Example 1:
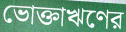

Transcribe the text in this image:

ভোক্তাঋণের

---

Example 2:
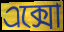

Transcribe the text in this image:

এক্সো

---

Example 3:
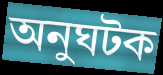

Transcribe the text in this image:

অনুঘটক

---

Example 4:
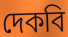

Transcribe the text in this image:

দেকবি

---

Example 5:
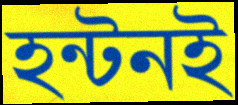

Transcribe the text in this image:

হন্টনই